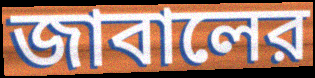
জাবালের